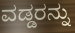
ವಡ್ಡರನ್ನು